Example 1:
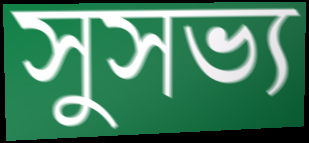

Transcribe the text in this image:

সুসভ্য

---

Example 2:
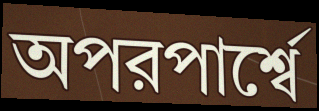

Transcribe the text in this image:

অপরপার্শ্বে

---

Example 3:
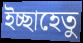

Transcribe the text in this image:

ইচ্ছাহেতু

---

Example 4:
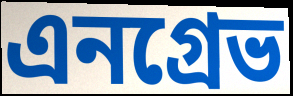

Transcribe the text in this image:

এনগ্রেভ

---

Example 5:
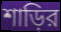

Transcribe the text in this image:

শাড়ির